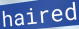
haired